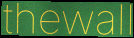
thewall